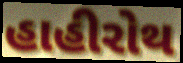
હાહીરોથ